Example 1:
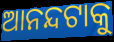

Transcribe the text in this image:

ଆନନ୍ଦଟାକୁ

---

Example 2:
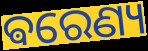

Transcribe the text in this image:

ଵରେଣ୍ୟ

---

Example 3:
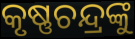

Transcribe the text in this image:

କୃଷ୍ଣଚନ୍ଦ୍ରଙ୍କୁ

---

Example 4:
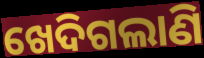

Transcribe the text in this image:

ଖେଦିଗଲାଣି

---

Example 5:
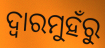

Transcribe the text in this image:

ଦ୍ଵାରମୁହଁରୁ